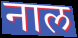
नाल